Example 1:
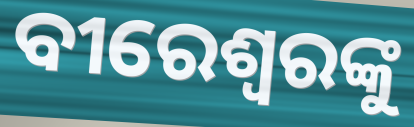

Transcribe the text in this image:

ବୀରେଶ୍ୱରଙ୍କୁ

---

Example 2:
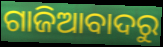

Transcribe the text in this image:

ଗାଜିଆବାଦରୁ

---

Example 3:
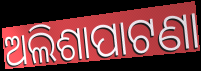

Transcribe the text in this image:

ଅଲିଶାପାଟଣା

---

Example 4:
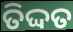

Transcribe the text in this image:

ତିଦ୍ଦତ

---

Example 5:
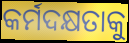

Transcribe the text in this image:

କର୍ମଦକ୍ଷତାକୁ